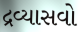
દ્રવ્યાસવો